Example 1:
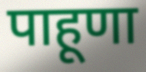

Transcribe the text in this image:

पाहूणा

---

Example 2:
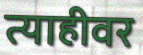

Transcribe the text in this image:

त्याहीवर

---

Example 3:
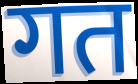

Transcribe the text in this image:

गत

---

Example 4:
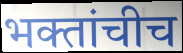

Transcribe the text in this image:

भक्तांचीच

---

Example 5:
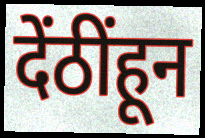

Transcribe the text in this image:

देंठींहून